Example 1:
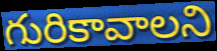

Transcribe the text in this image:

గురికావాలని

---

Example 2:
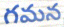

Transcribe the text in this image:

గమన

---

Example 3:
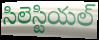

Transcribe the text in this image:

సిలెస్టియల్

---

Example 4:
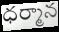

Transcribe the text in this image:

ధర్మాన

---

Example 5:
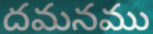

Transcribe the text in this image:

దమనము